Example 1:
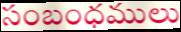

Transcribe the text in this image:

సంబంధములు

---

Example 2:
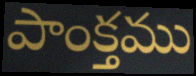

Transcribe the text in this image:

పాంక్తము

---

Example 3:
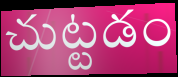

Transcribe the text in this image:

చుట్టడం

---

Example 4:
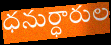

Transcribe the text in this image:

ధనుర్ధారుల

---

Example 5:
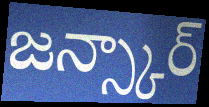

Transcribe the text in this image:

జన్స్కార్